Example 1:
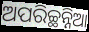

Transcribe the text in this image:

ଅପରିଚ୍ଛନ୍ନିଆ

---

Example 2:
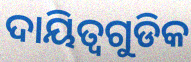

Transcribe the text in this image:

ଦାୟିତ୍ୱଗୁଡିକ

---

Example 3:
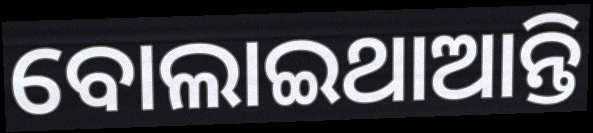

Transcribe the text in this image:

ବୋଲାଇଥାଆନ୍ତି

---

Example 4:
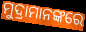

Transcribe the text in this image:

ମୁଦ୍ରାମାନଙ୍କରେ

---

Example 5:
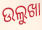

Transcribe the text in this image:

ଉଲୁଖା